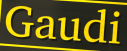
Gaudi